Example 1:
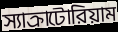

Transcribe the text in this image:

স্যাক্রাটোরিয়াম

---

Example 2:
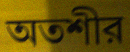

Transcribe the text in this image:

অতশীর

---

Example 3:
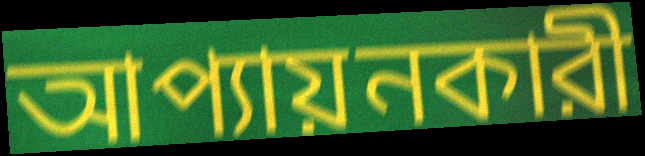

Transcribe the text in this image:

আপ্যায়নকারী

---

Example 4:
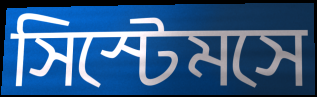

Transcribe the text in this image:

সিস্টেমসে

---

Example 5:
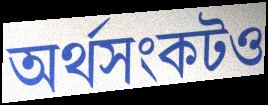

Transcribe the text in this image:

অর্থসংকটও